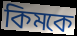
কিমকে